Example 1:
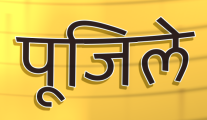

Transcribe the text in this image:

पूजिले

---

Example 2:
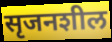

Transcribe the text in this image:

सृजनशील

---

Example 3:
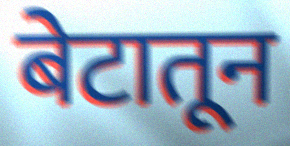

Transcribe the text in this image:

बेटातून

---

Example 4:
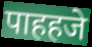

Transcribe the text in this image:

पाहहजे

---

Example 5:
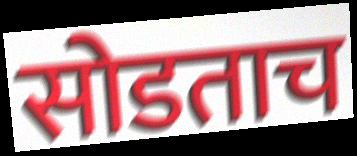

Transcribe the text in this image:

सोडताच